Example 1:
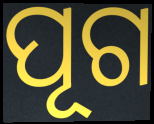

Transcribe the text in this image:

ପୂଗ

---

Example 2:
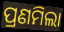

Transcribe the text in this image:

ପ୍ରଣମିଲା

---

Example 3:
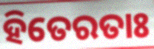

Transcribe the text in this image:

ହିତେରତାଃ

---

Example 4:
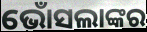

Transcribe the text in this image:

ଭୋଁସଲାଙ୍କର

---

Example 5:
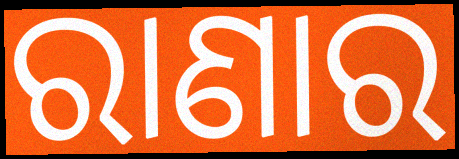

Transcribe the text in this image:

ରାଣାର